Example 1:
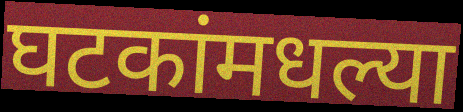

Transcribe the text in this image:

घटकांमधल्या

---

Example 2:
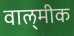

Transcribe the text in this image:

वाल्मीक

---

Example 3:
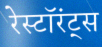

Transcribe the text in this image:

रेस्टॉरंट्‌स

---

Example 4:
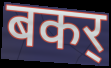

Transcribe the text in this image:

बकर्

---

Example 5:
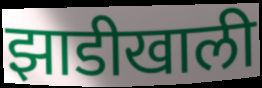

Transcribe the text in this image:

झाडीखाली